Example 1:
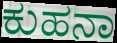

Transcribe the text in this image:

ಕುಹನಾ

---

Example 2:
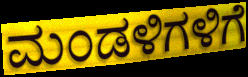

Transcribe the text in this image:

ಮಂಡಳಿಗಳಿಗೆ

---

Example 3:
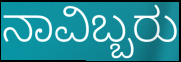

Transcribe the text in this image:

ನಾವಿಬ್ಬರು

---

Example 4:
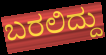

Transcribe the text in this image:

ಬರಲಿದ್ದು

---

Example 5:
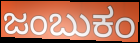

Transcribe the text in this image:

ಜಂಬುಕಂ